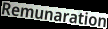
Remunaration